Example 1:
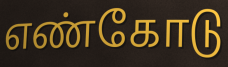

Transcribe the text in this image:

எண்கோடு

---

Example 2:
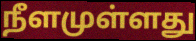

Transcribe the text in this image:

நீளமுள்ளது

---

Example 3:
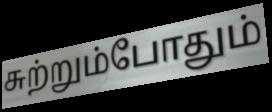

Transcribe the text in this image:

சுற்றும்போதும்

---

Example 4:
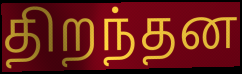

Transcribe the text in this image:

திறந்தன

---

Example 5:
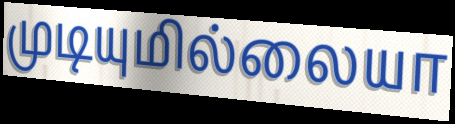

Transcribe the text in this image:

முடியுமில்லையா